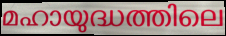
മഹായുദ്ധത്തിലെ